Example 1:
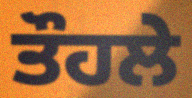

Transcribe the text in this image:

ਤੌਹਲੇ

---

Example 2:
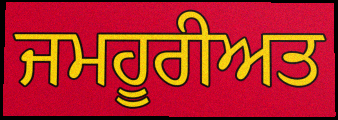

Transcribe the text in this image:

ਜਮਹੂਰੀਅਤ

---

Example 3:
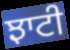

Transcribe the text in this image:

ਝਾਟੀ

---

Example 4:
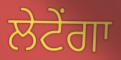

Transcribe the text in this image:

ਲੇਟੇਂਗਾ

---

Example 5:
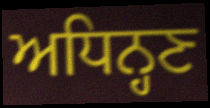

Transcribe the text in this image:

ਅਧਿਨ੍ਹਣ